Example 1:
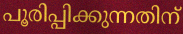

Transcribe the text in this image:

പൂരിപ്പിക്കുന്നതിന്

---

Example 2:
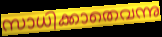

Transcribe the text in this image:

സാധിക്കാതെവന്നു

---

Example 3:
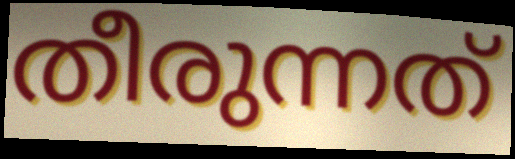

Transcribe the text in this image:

തീരുന്നത്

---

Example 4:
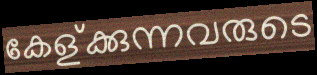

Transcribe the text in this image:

കേള്ക്കുന്നവരുടെ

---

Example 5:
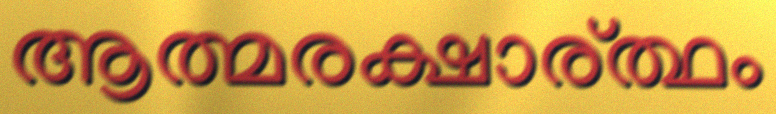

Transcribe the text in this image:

ആത്മരക്ഷാര്ത്ഥം